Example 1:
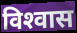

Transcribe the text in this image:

विश्‍वास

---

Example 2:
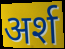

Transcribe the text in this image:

अर्श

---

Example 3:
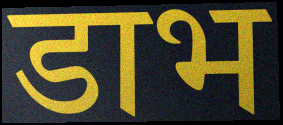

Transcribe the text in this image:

डाभ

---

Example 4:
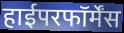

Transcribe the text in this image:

हाईपरफॉर्मेंस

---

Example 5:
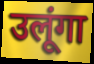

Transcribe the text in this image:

उलूंगा